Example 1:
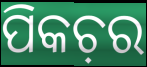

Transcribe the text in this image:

ପିକଚ଼ର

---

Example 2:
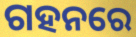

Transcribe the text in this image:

ଗହନରେ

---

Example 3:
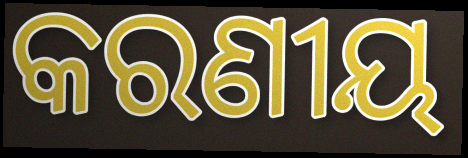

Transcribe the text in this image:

କରଣୀୟ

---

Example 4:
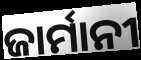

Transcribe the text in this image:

ଜାର୍ମାନୀ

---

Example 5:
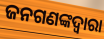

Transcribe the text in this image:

ଜନଗଣଙ୍କଦ୍ୱାରା